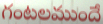
గంటలముందే